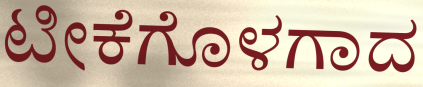
ಟೀಕೆಗೊಳಗಾದ